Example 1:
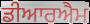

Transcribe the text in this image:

ਡੀਆਰਐਮ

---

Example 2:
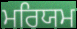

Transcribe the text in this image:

ਮਰਿਯਮ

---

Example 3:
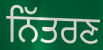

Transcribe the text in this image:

ਨਿੱਤਰਣ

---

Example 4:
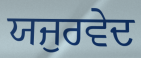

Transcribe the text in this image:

ਯਜੁਰਵੇਦ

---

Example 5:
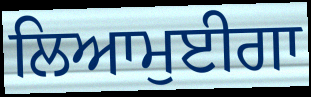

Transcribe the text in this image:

ਲਿਆਮੁਈਗਾ